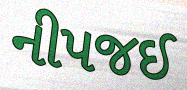
નીપજઈ